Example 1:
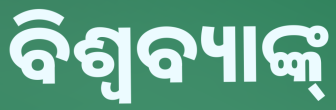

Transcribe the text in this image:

ବିଶ୍ଵବ୍ୟାଙ୍କ୍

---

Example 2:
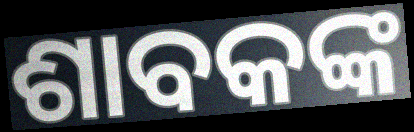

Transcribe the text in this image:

ଶାବକଙ୍କ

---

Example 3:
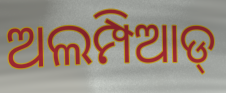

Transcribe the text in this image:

ଅଲମ୍ପିଆଡ୍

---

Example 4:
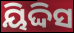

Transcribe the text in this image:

ୟିଦ୍ଦିସ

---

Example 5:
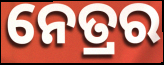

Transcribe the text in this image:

ନେତ୍ରର